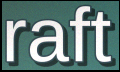
raft